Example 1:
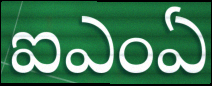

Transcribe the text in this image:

ఐఎంఏ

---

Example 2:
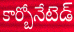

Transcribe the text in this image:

కార్బోనేటెడ్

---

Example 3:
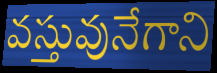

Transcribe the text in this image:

వస్తువునేగాని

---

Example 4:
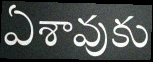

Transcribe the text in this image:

ఏశావుకు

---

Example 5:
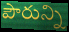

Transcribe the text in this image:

పౌరున్ని